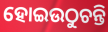
ହୋଇଉଠୁଚନ୍ତି